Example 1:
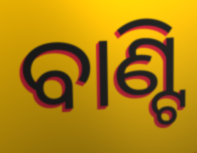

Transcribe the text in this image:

ବାଣ୍ଟି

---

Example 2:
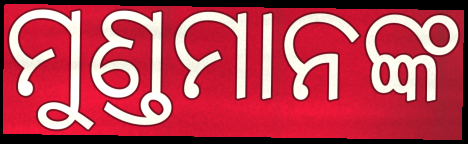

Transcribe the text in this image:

ମୁଣ୍ଡମାନଙ୍କ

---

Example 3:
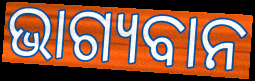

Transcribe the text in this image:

ଭାଗ୍ୟବାନ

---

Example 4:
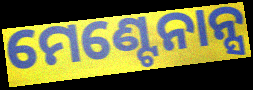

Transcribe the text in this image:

ମେଣ୍ଟେନାନ୍ସ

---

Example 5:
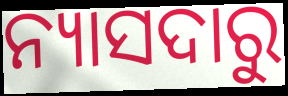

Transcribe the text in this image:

ନ୍ୟାସଦାରୁ